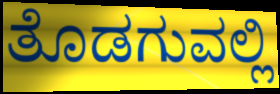
ತೊಡಗುವಲ್ಲಿ